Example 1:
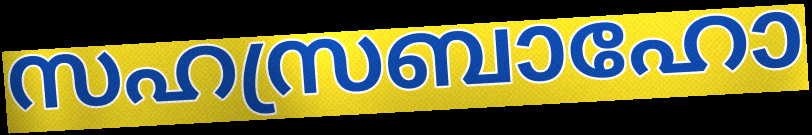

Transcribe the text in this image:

സഹസ്രബാഹോ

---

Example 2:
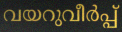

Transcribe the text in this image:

വയറുവീർപ്പ്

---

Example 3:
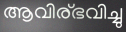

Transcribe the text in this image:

ആവിര്ഭവിച്ചു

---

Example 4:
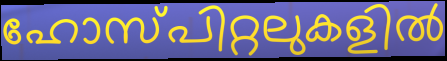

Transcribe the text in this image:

ഹോസ്പിറ്റലുകളിൽ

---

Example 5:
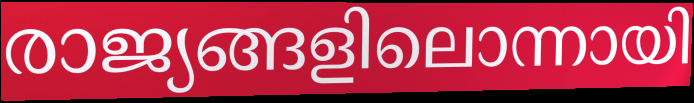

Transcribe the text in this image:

രാജ്യങ്ങളിലൊന്നായി